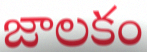
జాలకం